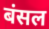
बंसल